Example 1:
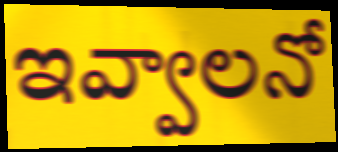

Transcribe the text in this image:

ఇవ్వాలనో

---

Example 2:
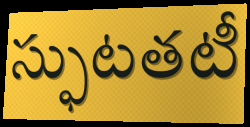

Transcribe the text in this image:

స్ఫుటతటీ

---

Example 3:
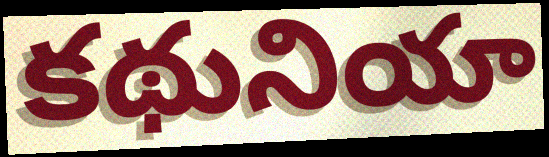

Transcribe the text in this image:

కథునియా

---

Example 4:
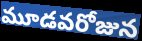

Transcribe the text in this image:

మూడవరోజున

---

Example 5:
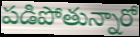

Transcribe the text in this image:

పడిపోతున్నారో